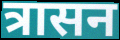
त्रासन